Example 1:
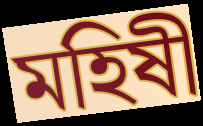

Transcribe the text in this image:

মহিষী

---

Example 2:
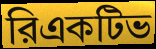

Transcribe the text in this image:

রিএকটিভ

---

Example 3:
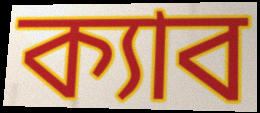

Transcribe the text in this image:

ক্যাব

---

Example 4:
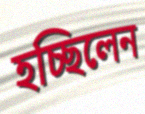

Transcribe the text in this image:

হচ্ছিলেন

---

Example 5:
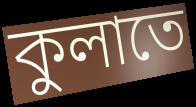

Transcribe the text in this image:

কুলাতে